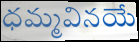
ధమ్మవినయే